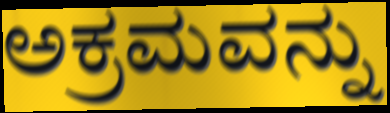
ಅಕ್ರಮವನ್ನು